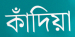
কাঁদিয়া